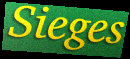
Sieges